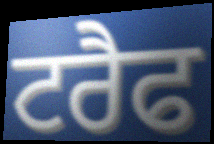
ਟਰੈਫ